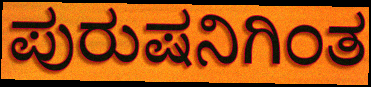
ಪುರುಷನಿಗಿಂತ